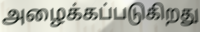
அழைக்கப்படுகிறது